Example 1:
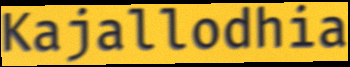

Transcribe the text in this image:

Kajallodhia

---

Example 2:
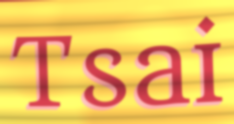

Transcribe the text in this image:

Tsai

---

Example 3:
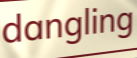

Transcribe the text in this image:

dangling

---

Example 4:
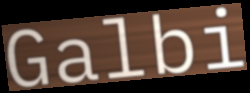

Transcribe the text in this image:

Galbi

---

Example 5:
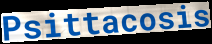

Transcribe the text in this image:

Psittacosis